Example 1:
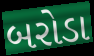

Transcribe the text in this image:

બરોડા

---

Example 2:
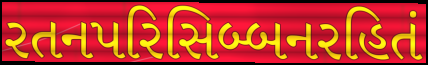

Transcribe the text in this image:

રતનપરિસિબ્બનરહિતં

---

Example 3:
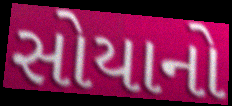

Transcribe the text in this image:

સોયાનો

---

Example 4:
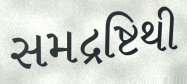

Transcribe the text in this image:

સમદ્રષ્ટિથી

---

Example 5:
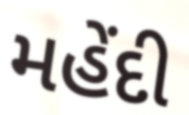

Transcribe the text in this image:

મહેંદી